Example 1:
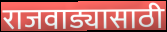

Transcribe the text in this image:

राजवाड्यासाठी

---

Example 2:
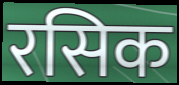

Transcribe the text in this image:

रसिक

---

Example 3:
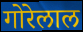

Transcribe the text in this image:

गोरेलाल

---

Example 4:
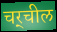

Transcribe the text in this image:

चर्चील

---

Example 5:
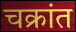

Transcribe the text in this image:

चक्रांत